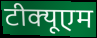
टीक्यूएम